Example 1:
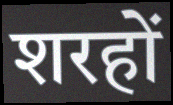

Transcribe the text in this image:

शरहों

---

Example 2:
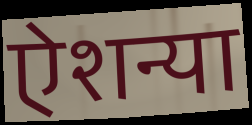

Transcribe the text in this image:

ऐशन्या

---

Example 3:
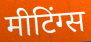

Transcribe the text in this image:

मीटिंग्स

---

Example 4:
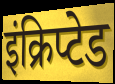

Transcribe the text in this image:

इंक्रिप्टेड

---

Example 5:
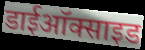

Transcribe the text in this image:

डाईऑक्साइड